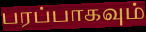
பரப்பாகவும்